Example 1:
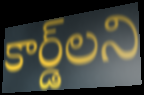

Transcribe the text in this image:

కార్డ్‌లని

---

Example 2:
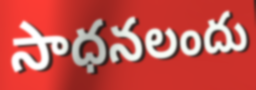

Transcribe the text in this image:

సాధనలందు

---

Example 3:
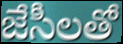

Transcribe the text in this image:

జేసీలతో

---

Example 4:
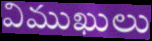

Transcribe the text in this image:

విముఖులు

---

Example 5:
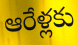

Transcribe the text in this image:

ఆరేళ్లకు